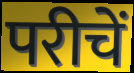
परीचें